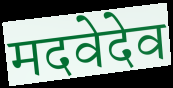
मदवेदेव